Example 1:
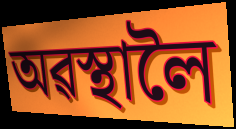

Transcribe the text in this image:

অৱস্থালৈ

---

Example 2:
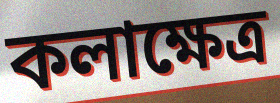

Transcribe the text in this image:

কলাক্ষেত্ৰ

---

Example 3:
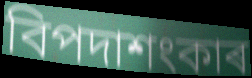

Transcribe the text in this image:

বিপদাশংকাৰ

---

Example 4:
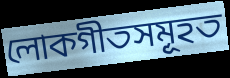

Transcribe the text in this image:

লোকগীতসমূহত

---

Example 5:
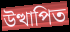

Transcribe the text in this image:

উত্থাপিত